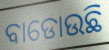
ବାଡୋଉଛି